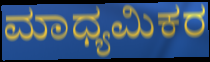
ಮಾಧ್ಯಮಿಕರ